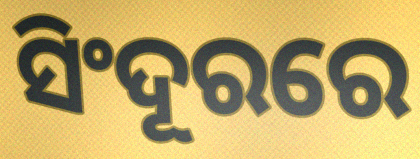
ସିଂଦୂରରେ